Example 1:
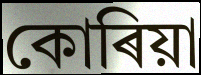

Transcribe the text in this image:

কোৰিয়া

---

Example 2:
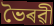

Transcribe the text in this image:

ভৈৰৱী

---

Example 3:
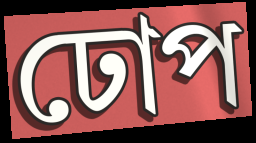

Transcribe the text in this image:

ঢোপ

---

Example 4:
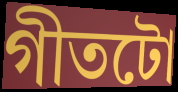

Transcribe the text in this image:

গীতটো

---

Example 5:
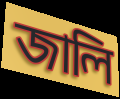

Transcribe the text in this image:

জালি